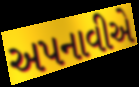
અપનાવીએ